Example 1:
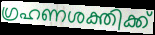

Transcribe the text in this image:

ഗ്രഹണശക്തിക്ക്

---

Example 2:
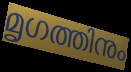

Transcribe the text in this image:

മൃഗത്തിനും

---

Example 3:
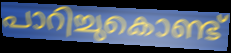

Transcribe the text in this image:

പാറിച്ചുകൊണ്ട്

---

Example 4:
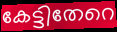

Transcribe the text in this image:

കേട്ടിതേറെ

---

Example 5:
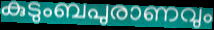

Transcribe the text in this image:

കുടുംബപുരാണവും